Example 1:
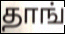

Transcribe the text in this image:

தாங்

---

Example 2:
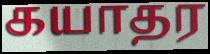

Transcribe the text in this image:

கயாதர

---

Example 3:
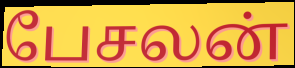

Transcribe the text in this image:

பேசலன்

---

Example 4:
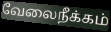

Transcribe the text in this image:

வேலைநீக்கம்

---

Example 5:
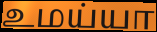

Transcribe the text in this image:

உமய்யா